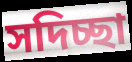
সদিচ্ছা